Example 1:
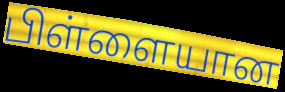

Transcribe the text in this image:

பிள்ளையான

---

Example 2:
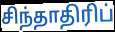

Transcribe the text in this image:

சிந்தாதிரிப்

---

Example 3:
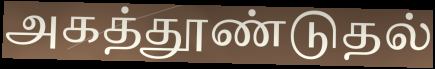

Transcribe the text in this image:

அகத்தூண்டுதல்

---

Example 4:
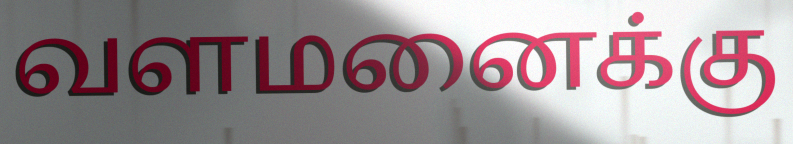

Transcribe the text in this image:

வளமனைக்கு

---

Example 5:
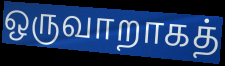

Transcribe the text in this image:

ஒருவாறாகத்